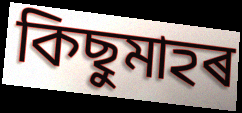
কিছুমাহৰ